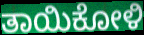
ತಾಯಿಕೋಳಿ